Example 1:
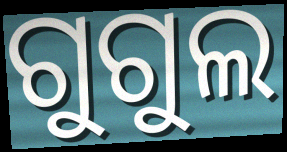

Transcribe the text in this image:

ଗୁଗୁଲ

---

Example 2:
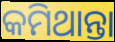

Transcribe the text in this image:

କମିଥାନ୍ତା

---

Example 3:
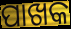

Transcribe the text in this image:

ପାଖକ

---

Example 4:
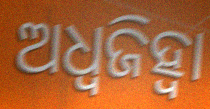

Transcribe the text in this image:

ଅଧ୍ୱଜିହ୍ବା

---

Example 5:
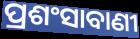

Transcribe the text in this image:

ପ୍ରଶଂସାବାଣୀ